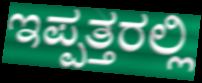
ಇಪ್ಪತ್ತರಲ್ಲಿ